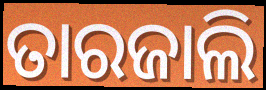
ତାରଜାଲି